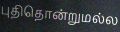
புதிதொன்றுமல்ல